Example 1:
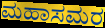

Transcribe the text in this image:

ಮಹಾಸಮರ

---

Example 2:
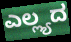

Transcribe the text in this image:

ಎಲ್ಲ್ಯದ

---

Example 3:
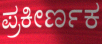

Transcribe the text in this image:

ಪ್ರಕೀರ್ಣಕ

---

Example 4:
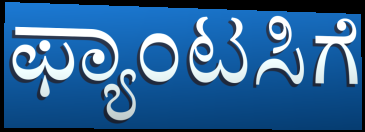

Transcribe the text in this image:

ಫ್ಯಾಂಟಸಿಗೆ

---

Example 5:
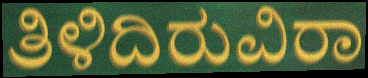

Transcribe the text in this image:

ತಿಳಿದಿರುವಿರಾ